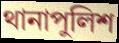
থানাপুলিশ